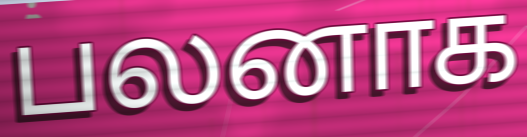
பலனாக